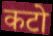
कटो